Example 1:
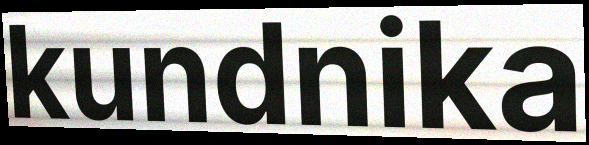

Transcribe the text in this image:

kundnika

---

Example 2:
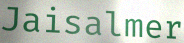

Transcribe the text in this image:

Jaisalmer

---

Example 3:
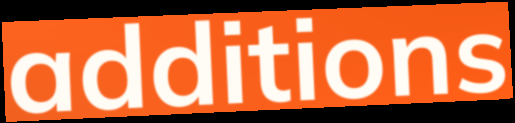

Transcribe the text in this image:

additions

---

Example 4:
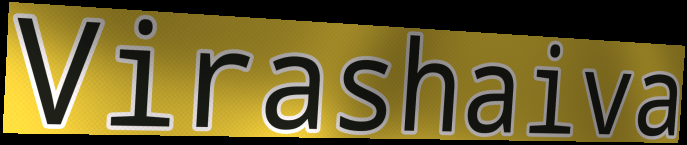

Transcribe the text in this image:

Virashaiva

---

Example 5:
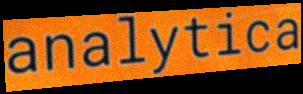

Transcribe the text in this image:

analytica